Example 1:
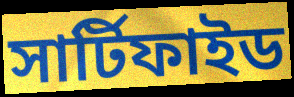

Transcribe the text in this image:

সার্টিফাইড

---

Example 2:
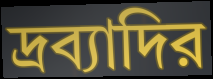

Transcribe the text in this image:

দ্রব্যাদির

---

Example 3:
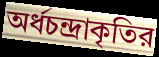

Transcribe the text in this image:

অর্ধচন্দ্রাকৃতির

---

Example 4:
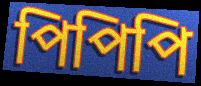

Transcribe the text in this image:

পিপিপি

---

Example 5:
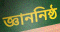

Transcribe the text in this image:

জ্ঞাননিষ্ঠ